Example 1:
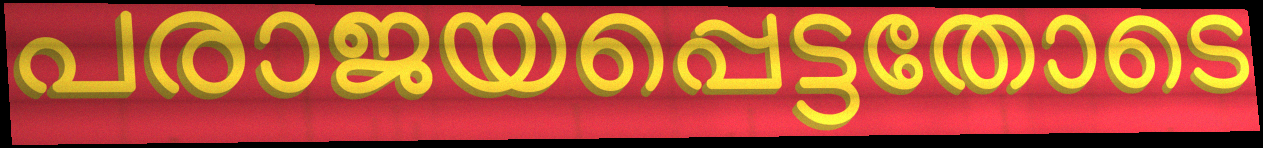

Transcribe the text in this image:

പരാജയപ്പെട്ടതോടെ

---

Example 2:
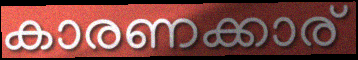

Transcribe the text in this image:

കാരണക്കാര്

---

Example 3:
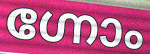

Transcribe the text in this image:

ഗ്നോം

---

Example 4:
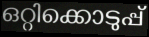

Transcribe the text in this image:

ഒറ്റിക്കൊടുപ്പ്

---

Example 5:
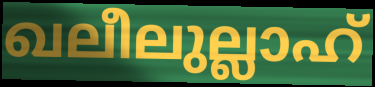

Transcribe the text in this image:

ഖലീലുല്ലാഹ്